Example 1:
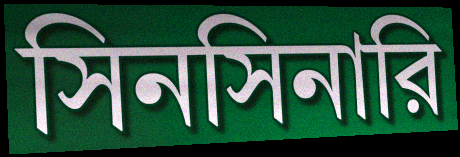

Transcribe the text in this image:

সিনসিনারি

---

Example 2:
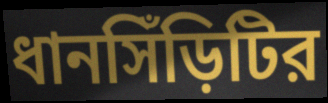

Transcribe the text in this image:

ধানসিঁড়িটির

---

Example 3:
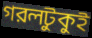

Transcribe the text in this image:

গরলটুকুই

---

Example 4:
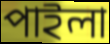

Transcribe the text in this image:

পাইলা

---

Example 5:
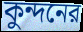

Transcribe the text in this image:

কুন্দনের